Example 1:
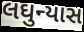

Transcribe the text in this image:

લઘુન્યાસ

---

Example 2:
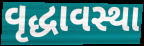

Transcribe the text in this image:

વૃદ્ધાવસ્થા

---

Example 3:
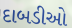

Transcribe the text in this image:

દાબડીઓ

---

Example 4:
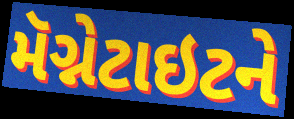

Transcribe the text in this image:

મૅગ્નેટાઇટને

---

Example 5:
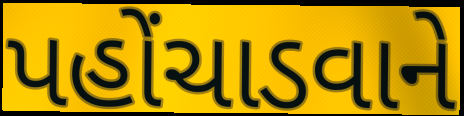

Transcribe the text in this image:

પહોંચાડવાને